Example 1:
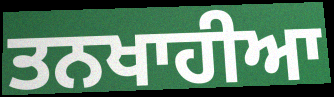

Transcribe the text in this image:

ਤਨਖਾਹੀਆ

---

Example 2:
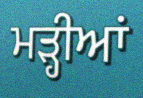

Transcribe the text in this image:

ਮੜ੍ਹੀਆਂ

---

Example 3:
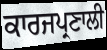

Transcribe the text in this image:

ਕਾਰਜਪ੍ਰਣਾਲੀ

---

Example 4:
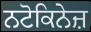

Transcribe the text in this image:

ਨਟੋਕਿਨੇਜ਼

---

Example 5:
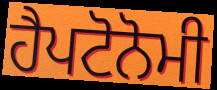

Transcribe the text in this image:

ਹੈਪਟੋਨੋਮੀ